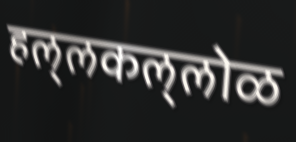
हल्लकल्लोळ